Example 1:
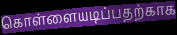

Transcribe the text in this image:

கொள்ளையடிப்பதற்காக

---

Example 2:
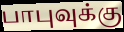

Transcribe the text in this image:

பாபுவுக்கு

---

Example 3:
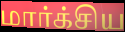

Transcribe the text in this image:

மார்க்சிய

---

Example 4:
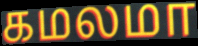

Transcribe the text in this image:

கமலமா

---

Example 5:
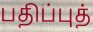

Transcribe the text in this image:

பதிப்புத்